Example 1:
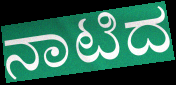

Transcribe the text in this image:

ನಾಟಿದ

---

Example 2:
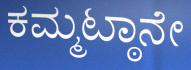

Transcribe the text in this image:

ಕಮ್ಮಟ್ಠಾನೇ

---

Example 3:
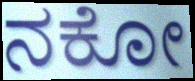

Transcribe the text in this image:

ನಕೋ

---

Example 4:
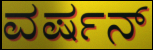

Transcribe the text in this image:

ವರ್ಷನ್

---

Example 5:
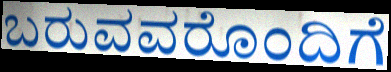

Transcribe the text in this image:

ಬರುವವರೊಂದಿಗೆ